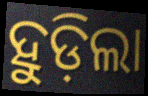
ହୁଡ଼ିଲା